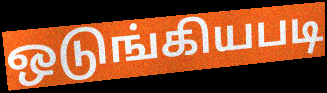
ஒடுங்கியபடி